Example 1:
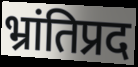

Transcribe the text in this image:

भ्रांतिप्रद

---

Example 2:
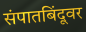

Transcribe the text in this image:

संपातबिंदूवर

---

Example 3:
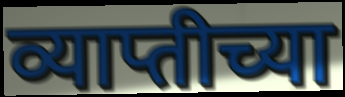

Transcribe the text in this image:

व्याप्तीच्या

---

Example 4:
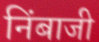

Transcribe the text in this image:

निंबाजी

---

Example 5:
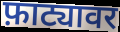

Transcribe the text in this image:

फ़ाट्यावर